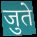
जुते